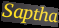
Saptha